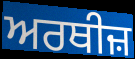
ਅਰਥੀਜ਼